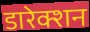
डारेक्शन